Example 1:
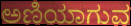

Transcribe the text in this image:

ಅಣಿಯಾಗುವ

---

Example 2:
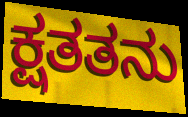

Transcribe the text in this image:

ಕ್ಷತತನು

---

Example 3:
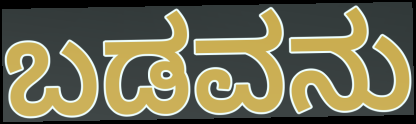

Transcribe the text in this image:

ಬಡವನು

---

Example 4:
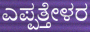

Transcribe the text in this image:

ಎಪ್ಪತ್ತೇಳರ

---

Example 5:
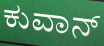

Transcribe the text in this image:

ಕುವಾನ್